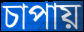
চাপায়